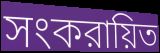
সংকরায়িত